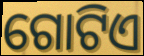
ଗୋଟିଏ